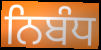
ਨਿਬੰਧ